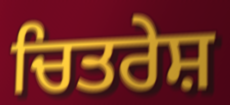
ਚਿਤਰੇਸ਼